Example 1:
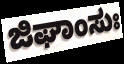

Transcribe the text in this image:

ಜಿಘಾಂಸುಃ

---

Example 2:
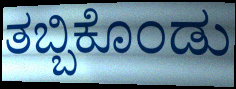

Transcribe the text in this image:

ತಬ್ಬಿಕೊಂಡು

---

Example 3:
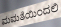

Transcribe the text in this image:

ಮಮತೆಯಿಂದಲಿ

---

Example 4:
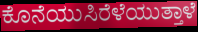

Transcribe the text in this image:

ಕೊನೆಯುಸಿರೆಳೆಯುತ್ತಾಳೆ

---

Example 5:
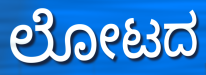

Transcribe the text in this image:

ಲೋಟದ